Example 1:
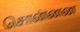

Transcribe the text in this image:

சொன்னன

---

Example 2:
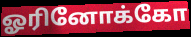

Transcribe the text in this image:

ஓரினோக்கோ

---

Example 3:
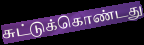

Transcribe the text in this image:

சுட்டுக்கொண்டது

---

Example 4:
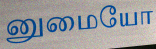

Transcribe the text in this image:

னுமையோ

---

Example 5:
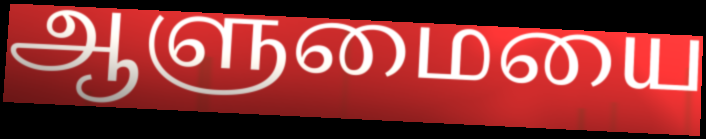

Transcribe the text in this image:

ஆளுமையை